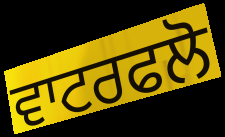
ਵਾਟਰਫਲੋ